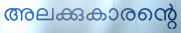
അലക്കുകാരന്റെ